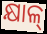
କ୍ଷାଳ୍